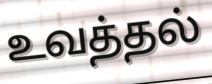
உவத்தல்